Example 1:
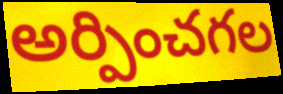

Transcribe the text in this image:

అర్పించగల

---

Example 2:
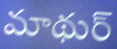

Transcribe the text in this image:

మాథుర్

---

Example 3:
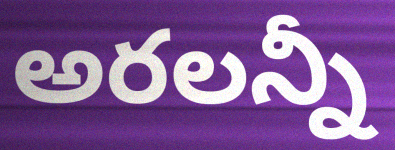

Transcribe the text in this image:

అరలన్నీ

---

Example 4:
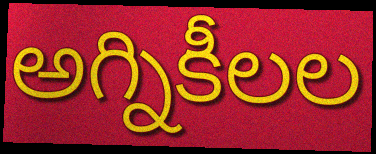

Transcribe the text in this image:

అగ్నికీలల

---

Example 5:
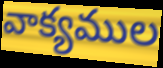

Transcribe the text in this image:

వాక్యముల